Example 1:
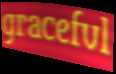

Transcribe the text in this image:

graceful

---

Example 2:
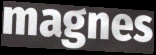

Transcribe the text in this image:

magnes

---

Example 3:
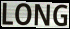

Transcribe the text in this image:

LONG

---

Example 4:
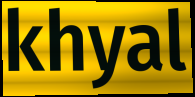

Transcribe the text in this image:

khyal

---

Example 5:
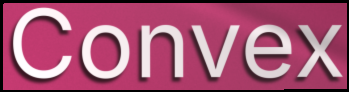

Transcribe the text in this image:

Convex